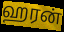
ஹரன்